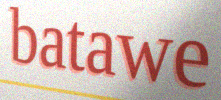
batawe